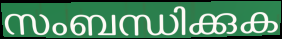
സംബന്ധിക്കുക